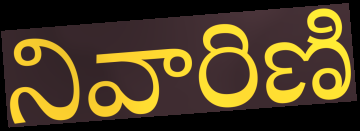
నివారిణి